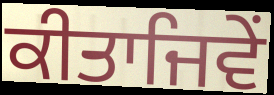
ਕੀਤਾਜਿਵੇਂ